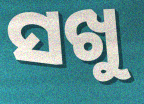
ସଖୁ